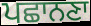
ਪਛਾਨਣਾ